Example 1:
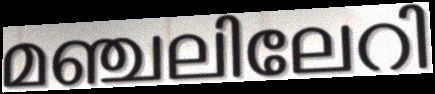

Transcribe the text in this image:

മഞ്ചലിലേറി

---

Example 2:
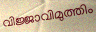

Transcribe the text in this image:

വിജ്ജാവിമുത്തിം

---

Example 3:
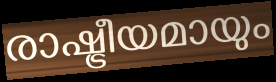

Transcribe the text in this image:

രാഷ്ട്രീയമായും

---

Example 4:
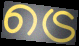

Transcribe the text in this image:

ട്രെ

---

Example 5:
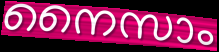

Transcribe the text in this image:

നൈസാം